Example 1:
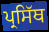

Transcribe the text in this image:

ਪ੍ਰਸਿੱਥ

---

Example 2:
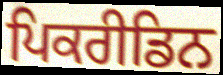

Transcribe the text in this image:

ਪਿਕਰੀਡਿਨ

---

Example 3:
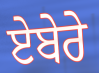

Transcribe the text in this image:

ਏਬੇਰੇ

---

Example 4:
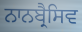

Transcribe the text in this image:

ਨਾਨਬ੍ਰੈਸਿਵ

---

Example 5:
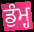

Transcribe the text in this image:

ਡੁੰਮ੍ਹ